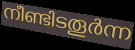
നീണ്ടിടതൂർന്ന